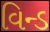
વિન્ડ